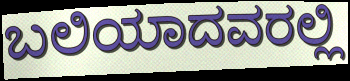
ಬಲಿಯಾದವರಲ್ಲಿ